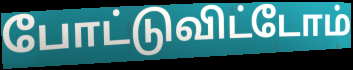
போட்டுவிட்டோம்